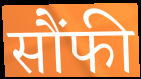
सौंफी